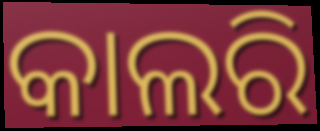
କାଲରି